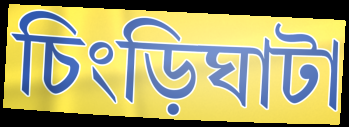
চিংড়িঘাটা